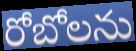
రోబోలను